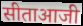
सीताआजी